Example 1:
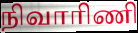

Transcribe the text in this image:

நிவாரிணி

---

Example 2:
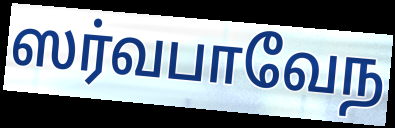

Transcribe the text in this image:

ஸர்வபாவேந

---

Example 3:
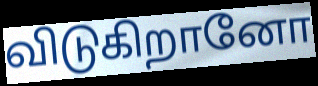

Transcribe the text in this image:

விடுகிறானோ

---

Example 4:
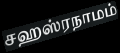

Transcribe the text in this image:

சஹஸ்ரநாமம்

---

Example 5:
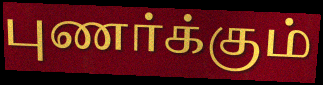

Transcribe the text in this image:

புணர்க்கும்